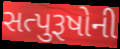
સત્પુરૂષોની